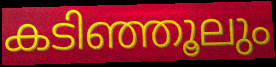
കടിഞ്ഞൂലും